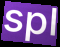
spl